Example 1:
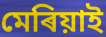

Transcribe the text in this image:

মেৰিয়াই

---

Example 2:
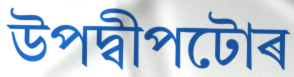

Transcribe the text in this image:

উপদ্বীপটোৰ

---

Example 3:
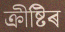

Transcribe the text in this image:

ক্ৰীষ্টিৰ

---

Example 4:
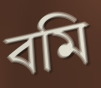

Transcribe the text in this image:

বমি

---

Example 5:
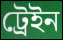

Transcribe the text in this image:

ট্ৰেইন